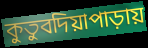
কুতুবদিয়াপাড়ায়